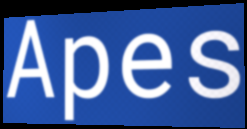
Apes